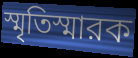
স্মৃতিস্মারক